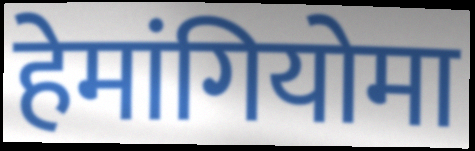
हेमांगियोमा